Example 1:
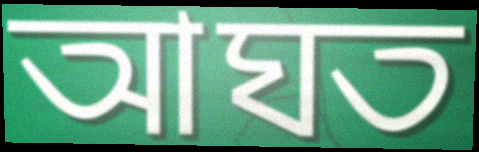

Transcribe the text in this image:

আঘত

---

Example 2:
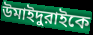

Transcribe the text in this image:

উমাইদুরাইকে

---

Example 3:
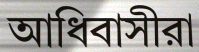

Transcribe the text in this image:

আধিবাসীরা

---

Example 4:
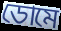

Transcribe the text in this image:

ডোমে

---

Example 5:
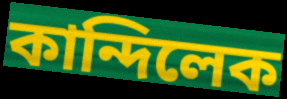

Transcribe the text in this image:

কান্দিলেক